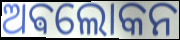
ଅଵଲୋକନ